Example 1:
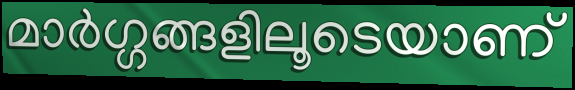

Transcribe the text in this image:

മാർഗ്ഗങ്ങളിലൂടെയാണ്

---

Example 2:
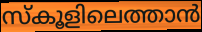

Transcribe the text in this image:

സ്കൂളിലെത്താൻ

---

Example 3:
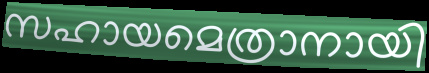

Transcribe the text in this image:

സഹായമെത്രാനായി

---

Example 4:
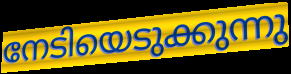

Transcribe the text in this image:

നേടിയെടുക്കുന്നു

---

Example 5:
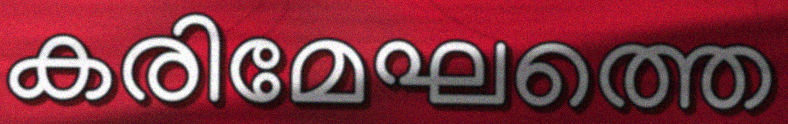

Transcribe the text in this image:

കരിമേഘത്തെ